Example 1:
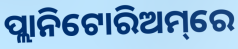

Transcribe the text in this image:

ପ୍ଲାନିଟୋରିଅମ୍‌ରେ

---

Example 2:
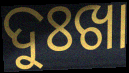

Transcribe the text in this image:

ଦୁଃଖା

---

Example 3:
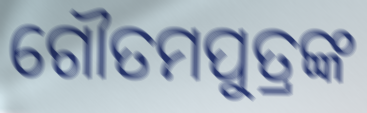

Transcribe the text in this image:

ଗୌତମପୁତ୍ରଙ୍କ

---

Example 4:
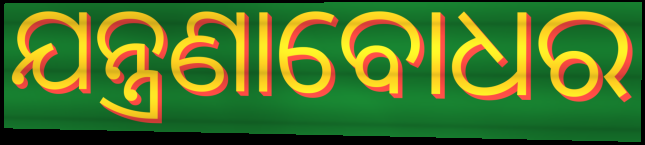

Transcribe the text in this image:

ଯନ୍ତ୍ରଣାବୋଧର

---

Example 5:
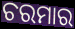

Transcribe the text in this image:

ଚରମାର